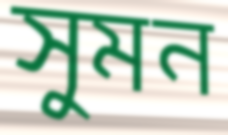
সুমন